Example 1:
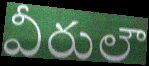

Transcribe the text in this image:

వీరులౌ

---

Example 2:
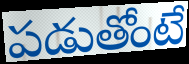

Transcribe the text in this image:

పడుతోంటే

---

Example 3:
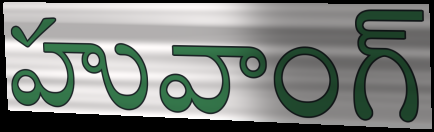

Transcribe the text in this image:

హువాంగ్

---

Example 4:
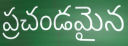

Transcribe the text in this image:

ప్రచండమైన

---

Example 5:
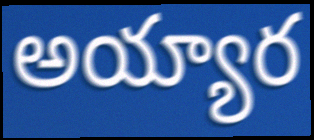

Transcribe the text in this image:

అయ్యార